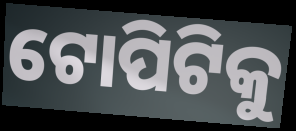
ଟୋପିଟିକୁ